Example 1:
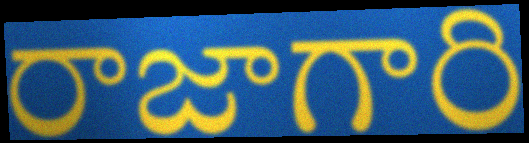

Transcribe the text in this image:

రాజాగారి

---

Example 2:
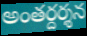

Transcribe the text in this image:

అంతర్దర్శన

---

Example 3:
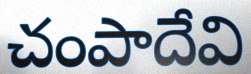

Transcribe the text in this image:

చంపాదేవి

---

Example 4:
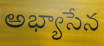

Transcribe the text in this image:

అభ్యాసేన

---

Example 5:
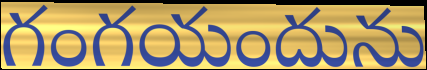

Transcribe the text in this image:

గంగయందును